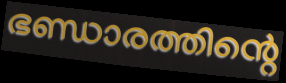
ഭണ്ഡാരത്തിന്റെ